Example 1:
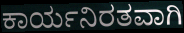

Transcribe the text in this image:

ಕಾರ್ಯನಿರತವಾಗಿ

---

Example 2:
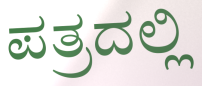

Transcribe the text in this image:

ಪತ್ರದಲ್ಲಿ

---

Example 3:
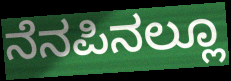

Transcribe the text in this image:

ನೆನಪಿನಲ್ಲೂ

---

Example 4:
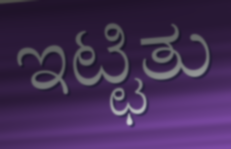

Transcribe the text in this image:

ಇಟ್ಟಿತು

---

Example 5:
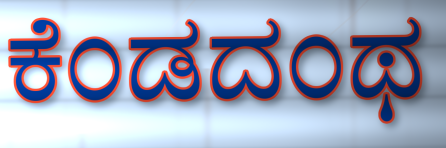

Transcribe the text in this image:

ಕೆಂಡದಂಥ